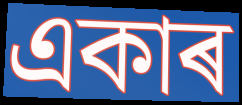
একাৰ